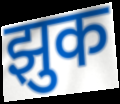
झुक